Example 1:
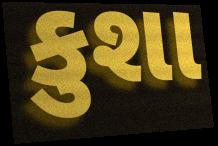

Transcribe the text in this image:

કુશા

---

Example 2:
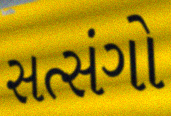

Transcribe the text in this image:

સત્સંગો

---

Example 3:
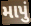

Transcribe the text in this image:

માપું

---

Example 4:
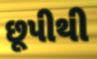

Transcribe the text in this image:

છૂપીથી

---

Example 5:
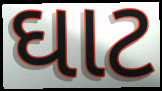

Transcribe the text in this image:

ઘાટ